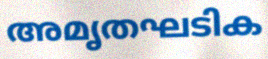
അമൃതഘടിക